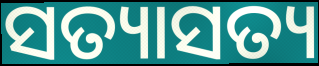
ସତ୍ୟାସତ୍ୟ